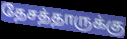
தேசத்தாருக்கு